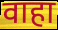
वाहा